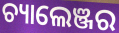
ଚ୍ୟାଲେଞ୍ଜର